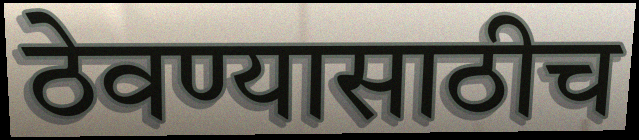
ठेवण्यासाठीच